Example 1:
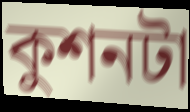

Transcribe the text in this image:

কুশনটা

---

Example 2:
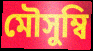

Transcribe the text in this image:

মৌসুম্বি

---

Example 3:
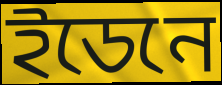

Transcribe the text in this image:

ইডেনে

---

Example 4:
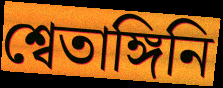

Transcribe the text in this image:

শ্বেতাঙ্গিনি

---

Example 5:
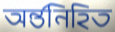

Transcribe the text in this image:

অর্ন্তনিহিত